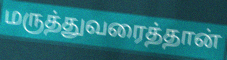
மருத்துவரைத்தான்